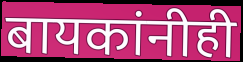
बायकांनीही